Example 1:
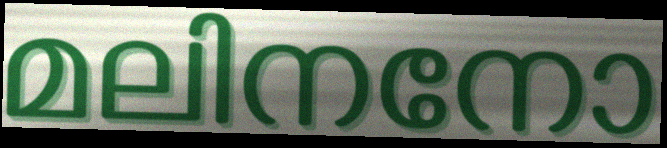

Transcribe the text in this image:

മലിനനോ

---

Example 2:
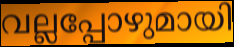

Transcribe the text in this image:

വല്ലപ്പോഴുമായി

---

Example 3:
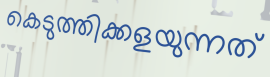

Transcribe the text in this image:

കെടുത്തിക്കളയുന്നത്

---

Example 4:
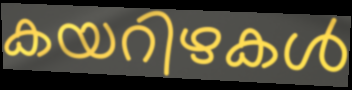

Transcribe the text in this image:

കയറിഴകൾ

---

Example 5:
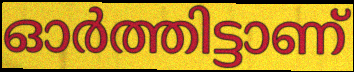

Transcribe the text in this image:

ഓർത്തിട്ടാണ്